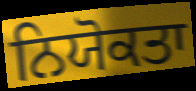
ਨਿਯੋਕਤਾ